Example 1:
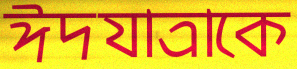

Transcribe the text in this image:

ঈদযাত্রাকে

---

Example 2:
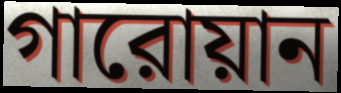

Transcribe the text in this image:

গারোয়ান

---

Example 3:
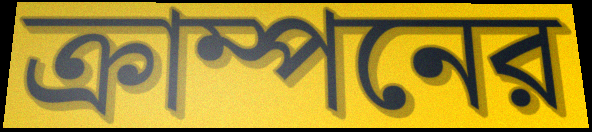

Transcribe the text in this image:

ক্রাম্পনের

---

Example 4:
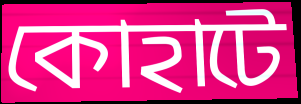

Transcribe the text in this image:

কোহাটে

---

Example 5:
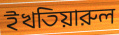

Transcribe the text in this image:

ইখতিয়ারুল